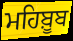
ਮਹਿਬ਼ੂਬ